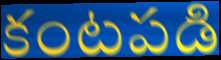
కంటపడి